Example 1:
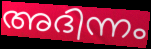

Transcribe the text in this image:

അദിന്നം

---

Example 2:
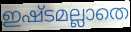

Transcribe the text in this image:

ഇഷ്ടമല്ലാതെ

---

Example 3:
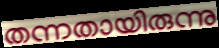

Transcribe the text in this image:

തന്നതായിരുന്നു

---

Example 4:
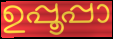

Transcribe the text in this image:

ഉപ്പൂപ്പാ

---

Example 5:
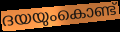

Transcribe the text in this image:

ദയയുംകൊണ്ട്